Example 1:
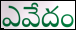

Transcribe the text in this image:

ఎవేదం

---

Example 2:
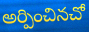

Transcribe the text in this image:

అర్పించినచో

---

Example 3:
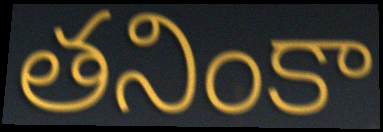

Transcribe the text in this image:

తనింకా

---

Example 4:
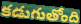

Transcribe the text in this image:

కడుగుతోంది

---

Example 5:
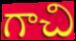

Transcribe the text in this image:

గాచి